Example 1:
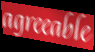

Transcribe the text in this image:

agreeable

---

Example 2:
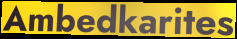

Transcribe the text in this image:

Ambedkarites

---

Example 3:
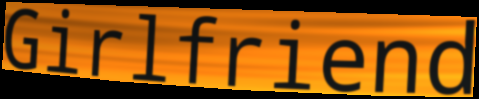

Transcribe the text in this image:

Girlfriend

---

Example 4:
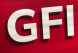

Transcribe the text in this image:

GFI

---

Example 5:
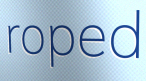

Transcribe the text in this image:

roped